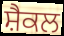
ਸ਼ੈਕਲ